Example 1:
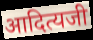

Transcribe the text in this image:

आदित्यजी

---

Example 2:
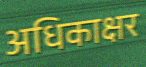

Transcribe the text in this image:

अधिकाक्षर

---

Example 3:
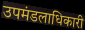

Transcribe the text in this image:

उपमंडलाधिकारी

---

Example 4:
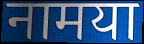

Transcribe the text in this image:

नामया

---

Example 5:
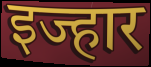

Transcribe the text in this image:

इज्हार